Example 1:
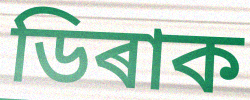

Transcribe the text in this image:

ডিৰাক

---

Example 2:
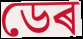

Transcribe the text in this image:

ডেৰ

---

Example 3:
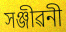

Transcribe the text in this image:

সঞ্জীৱনী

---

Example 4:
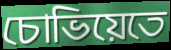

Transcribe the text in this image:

চোভিয়েতে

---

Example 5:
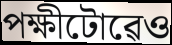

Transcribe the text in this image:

পক্ষীটোৱেও